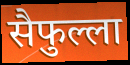
सैफुल्ला